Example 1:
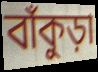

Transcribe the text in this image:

বাঁকুড়া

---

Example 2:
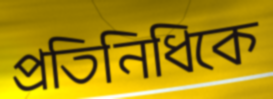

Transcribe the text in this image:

প্রতিনিধিকে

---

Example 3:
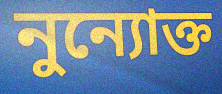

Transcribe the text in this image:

নুন্যোক্ত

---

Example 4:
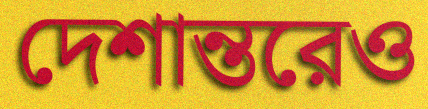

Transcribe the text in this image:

দেশান্তরেও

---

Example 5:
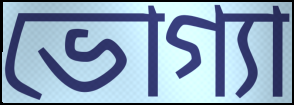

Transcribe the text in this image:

ভোগ্যা